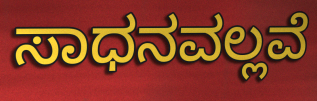
ಸಾಧನವಲ್ಲವೆ